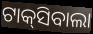
ଟାକ୍‌ସିବାଲା